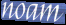
noam